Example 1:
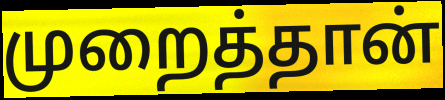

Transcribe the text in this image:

முறைத்தான்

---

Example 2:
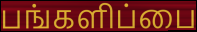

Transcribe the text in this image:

பங்களிப்பை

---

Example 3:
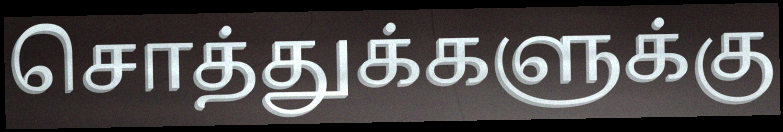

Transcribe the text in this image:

சொத்துக்களுக்கு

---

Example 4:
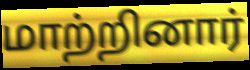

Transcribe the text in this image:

மாற்றினார்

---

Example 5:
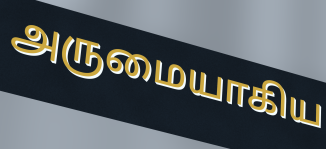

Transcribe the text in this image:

அருமையாகிய